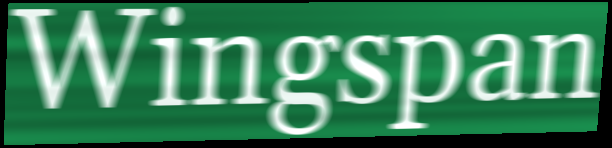
Wingspan